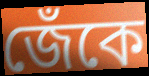
জেঁকে